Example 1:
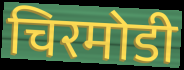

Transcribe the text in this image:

चिरमोडी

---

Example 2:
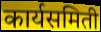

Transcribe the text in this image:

कार्यसमिती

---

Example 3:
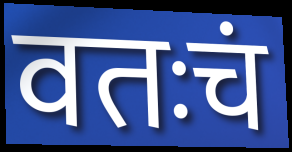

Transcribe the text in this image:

वतःचं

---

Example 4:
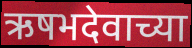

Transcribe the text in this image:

ऋषभदेवाच्या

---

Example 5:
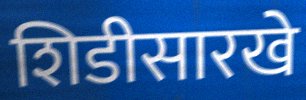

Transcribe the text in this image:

शिडीसारखे